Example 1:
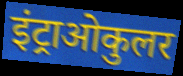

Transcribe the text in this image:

इंट्राओकुलर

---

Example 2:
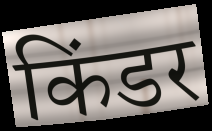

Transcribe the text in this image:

किंडर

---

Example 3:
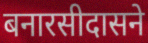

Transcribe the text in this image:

बनारसीदासने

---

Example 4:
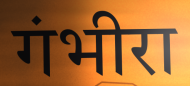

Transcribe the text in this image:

गंभीरा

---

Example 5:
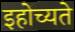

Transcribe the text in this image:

इहोच्यते